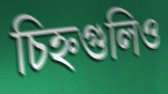
চিহ্নগুলিও